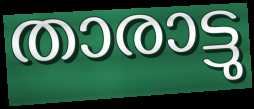
താരാട്ടു